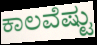
ಕಾಲವೆಷ್ಟು